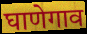
घाणेगाव